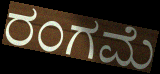
ರಂಗಮೆ